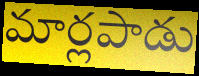
మార్లపాడు